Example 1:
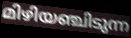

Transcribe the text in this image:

മിഴിയഞ്ചിടുന്ന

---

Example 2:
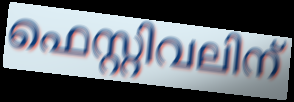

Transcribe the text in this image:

ഫെസ്റ്റിവലിന്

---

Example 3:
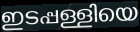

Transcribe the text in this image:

ഇടപ്പള്ളിയെ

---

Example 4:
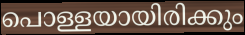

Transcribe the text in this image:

പൊള്ളയായിരിക്കും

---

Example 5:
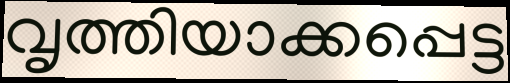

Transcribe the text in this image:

വൃത്തിയാക്കപ്പെട്ട